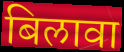
बिलावा